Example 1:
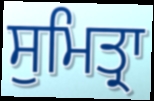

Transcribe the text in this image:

ਸੁਮਿਤ੍ਰਾ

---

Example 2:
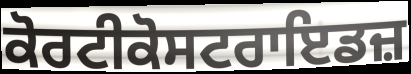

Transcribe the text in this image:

ਕੋਰਟੀਕੋਸਟਰਾਇਡਜ਼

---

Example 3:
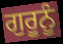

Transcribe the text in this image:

ਗੁਰੂਨੂੰ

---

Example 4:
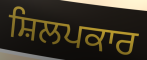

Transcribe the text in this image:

ਸ਼ਿਲਪਕਾਰ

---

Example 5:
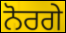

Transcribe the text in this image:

ਨੋਰਗੇ